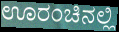
ಊರಂಚಿನಲ್ಲಿ